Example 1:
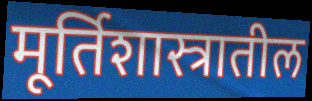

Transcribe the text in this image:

मूर्तिशास्त्रातील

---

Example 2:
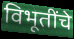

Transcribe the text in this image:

विभूतींचे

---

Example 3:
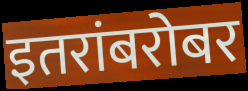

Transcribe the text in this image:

इतरांबरोबर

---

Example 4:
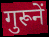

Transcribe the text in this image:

गुरूनें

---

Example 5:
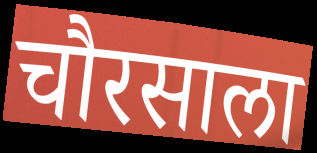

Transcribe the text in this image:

चौरसाला